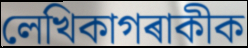
লেখিকাগৰাকীক